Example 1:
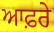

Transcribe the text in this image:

ਆਫ਼ਰੇ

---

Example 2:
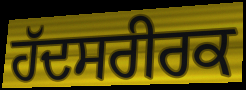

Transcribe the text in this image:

ਹੱਦਸਰੀਰਕ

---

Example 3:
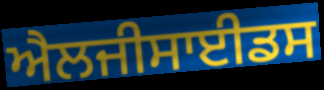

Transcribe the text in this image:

ਐਲਜੀਸਾਈਡਸ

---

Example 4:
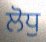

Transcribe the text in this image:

ਲੋਧੁ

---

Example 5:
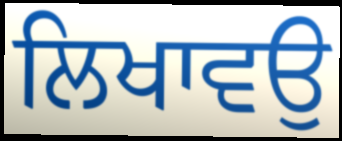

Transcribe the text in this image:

ਲਿਖਾਵਉ